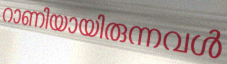
റാണിയായിരുന്നവൾ